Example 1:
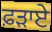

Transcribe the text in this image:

ਫ਼ੜਾਏ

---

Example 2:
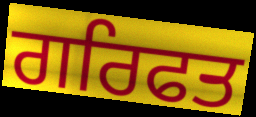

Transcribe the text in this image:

ਗਰਿਫਤ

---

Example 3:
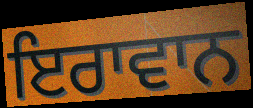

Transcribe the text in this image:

ਇਰਾਵਾਨ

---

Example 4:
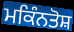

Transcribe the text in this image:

ਮਕਿੰਨਤੋਸ਼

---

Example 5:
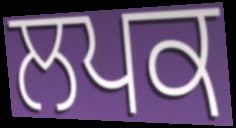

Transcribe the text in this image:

ਲਪਕ